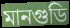
মানগুডি